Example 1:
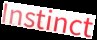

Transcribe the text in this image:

Instinct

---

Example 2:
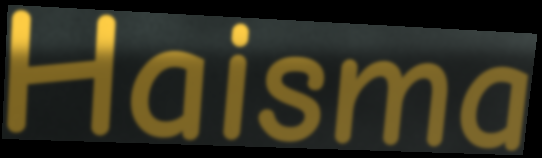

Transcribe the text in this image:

Haisma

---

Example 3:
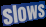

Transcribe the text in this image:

slows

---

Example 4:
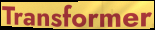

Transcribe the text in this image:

Transformer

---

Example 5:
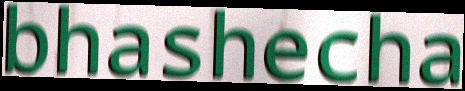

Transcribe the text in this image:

bhashecha